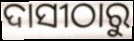
ଦାସୀଠାରୁ